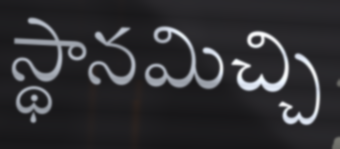
స్థానమిచ్చి